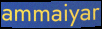
ammaiyar